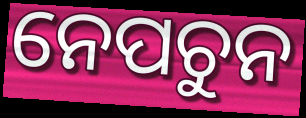
ନେପଚୁନ